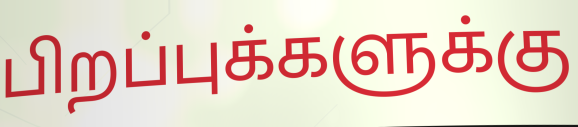
பிறப்புக்களுக்கு